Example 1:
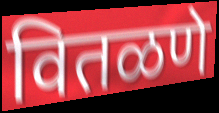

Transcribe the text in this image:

वितळणे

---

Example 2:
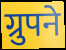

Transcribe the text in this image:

ग्रुपने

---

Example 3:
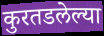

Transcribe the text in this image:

कुरतडलेल्या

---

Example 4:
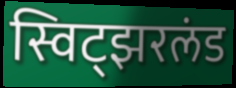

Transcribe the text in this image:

स्विट्झरलंड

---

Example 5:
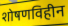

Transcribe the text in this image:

शोषणविहीन